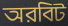
অরবিট